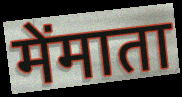
मेंमाता